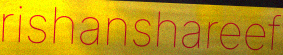
rishanshareef